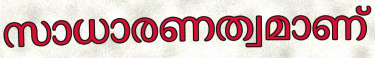
സാധാരണത്വമാണ്